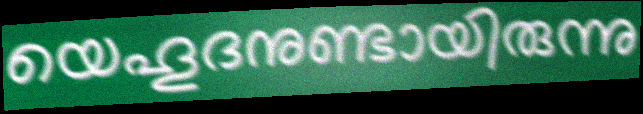
യെഹൂദനുണ്ടായിരുന്നു